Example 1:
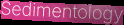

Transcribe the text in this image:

Sedimentology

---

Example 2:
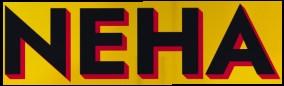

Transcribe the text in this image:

NEHA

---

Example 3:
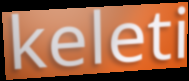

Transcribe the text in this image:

keleti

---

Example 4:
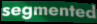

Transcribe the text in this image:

segmented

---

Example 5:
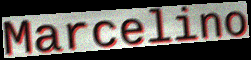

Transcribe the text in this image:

Marcelino